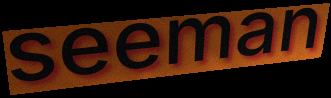
seeman